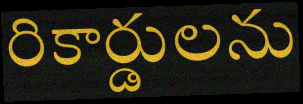
రికార్డులను